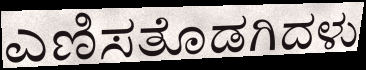
ಎಣಿಸತೊಡಗಿದಳು